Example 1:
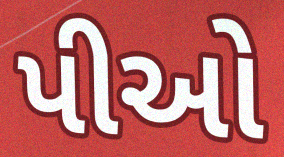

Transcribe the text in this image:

પીઓ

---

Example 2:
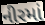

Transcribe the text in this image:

નીરમાં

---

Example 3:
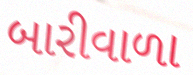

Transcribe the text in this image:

બારીવાળા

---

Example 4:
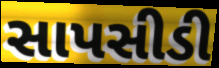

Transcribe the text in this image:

સાપસીડી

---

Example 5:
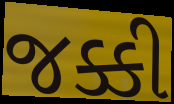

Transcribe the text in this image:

જક્કી